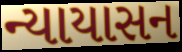
ન્યાયાસન